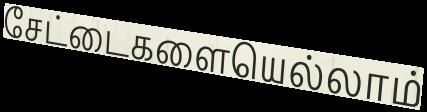
சேட்டைகளையெல்லாம்